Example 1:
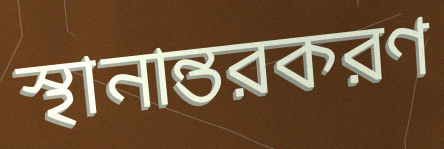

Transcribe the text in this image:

স্থানান্তরকরণ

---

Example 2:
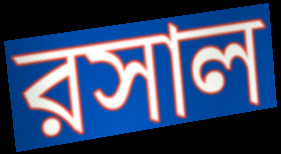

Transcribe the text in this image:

রসাল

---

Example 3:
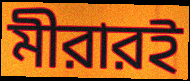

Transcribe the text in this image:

মীরারই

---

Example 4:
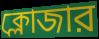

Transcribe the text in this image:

ক্লোজার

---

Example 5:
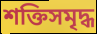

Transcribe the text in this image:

শক্তিসমৃদ্ধ